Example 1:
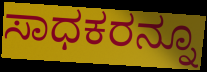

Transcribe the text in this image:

ಸಾಧಕರನ್ನೂ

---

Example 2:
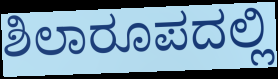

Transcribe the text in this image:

ಶಿಲಾರೂಪದಲ್ಲಿ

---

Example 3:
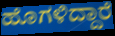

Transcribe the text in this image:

ಹೊಗಳಿದ್ದಾರೆ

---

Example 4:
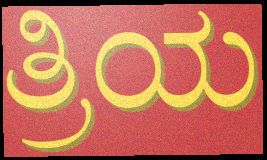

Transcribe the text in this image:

ತ್ರಿಯ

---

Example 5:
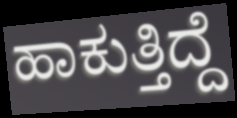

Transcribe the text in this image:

ಹಾಕುತ್ತಿದ್ದೆ